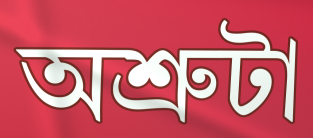
অশ্রুটা